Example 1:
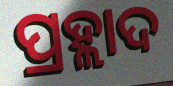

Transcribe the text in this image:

ପ୍ରହ୍ଲାଦ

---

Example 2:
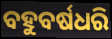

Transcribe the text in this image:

ବହୁବର୍ଷଧରି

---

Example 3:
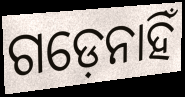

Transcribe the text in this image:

ଗଡ଼େନାହିଁ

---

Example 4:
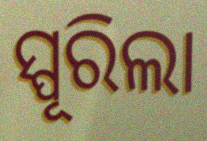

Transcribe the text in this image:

ସ୍ପୂରିଲା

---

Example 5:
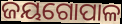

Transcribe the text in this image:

ଜୟଗୋପାଳ